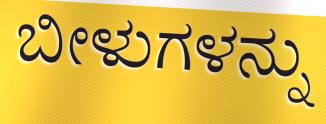
ಬೀಳುಗಳನ್ನು